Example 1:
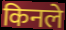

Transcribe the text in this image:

किनले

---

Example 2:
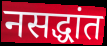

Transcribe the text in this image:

नसद्धांत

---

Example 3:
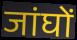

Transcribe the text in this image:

जांघों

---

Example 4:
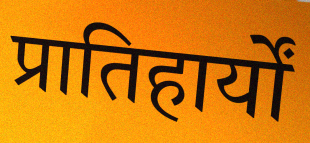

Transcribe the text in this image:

प्रातिहार्यों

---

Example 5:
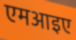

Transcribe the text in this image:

एमआइए